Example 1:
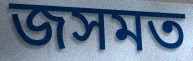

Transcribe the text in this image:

জসমত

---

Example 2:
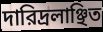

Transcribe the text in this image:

দারিদ্রলাঞ্ছিত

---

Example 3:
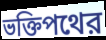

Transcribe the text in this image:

ভক্তিপথের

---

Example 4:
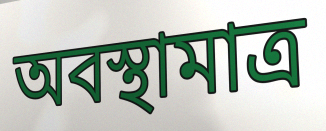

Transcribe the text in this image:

অবস্থামাত্র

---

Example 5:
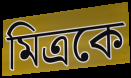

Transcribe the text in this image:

মিত্রকে